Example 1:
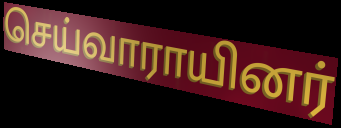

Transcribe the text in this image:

செய்வாராயினர்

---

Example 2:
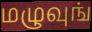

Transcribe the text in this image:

மழுவுங்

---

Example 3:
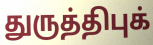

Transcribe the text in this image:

துருத்திபுக்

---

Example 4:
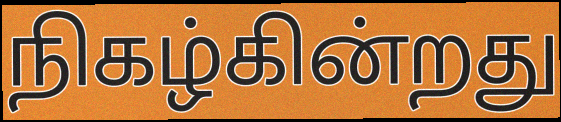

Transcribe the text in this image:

நிகழ்கின்றது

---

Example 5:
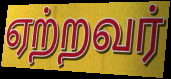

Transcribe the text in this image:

ஏற்றவர்